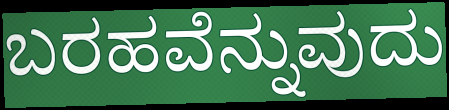
ಬರಹವೆನ್ನುವುದು